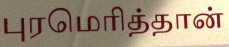
புரமெரித்தான்